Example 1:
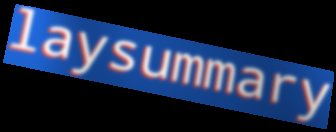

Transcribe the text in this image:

laysummary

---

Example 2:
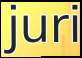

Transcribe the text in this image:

juri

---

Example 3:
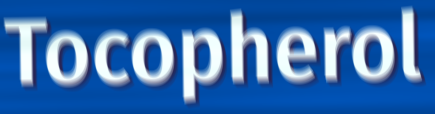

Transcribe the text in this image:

Tocopherol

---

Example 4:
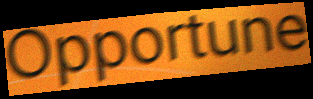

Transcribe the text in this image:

Opportune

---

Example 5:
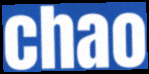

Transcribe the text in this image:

chao